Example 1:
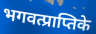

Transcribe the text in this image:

भगवत्प्राप्तिके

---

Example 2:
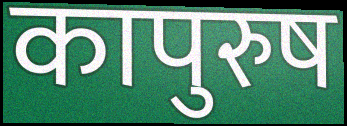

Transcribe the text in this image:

कापुरुष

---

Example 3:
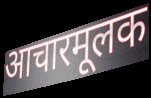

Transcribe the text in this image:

आचारमूलक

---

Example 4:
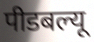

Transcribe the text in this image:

पीडबल्यू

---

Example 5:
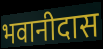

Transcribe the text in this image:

भवानीदास